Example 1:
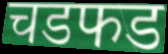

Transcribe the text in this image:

चडफड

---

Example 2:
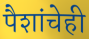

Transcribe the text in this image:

पैशांचेही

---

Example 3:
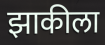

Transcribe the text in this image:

झाकीला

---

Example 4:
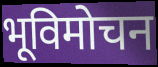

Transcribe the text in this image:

भूविमोचन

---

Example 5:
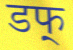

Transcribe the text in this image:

डफ्